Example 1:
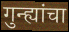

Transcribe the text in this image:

गुन्ह्यांचा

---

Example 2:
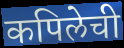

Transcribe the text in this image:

कपिलेची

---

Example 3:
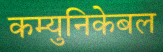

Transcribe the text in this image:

कम्युनिकेबल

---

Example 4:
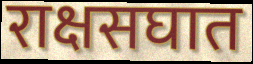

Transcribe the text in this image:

राक्षसघात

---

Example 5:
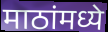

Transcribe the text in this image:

माठांमध्ये